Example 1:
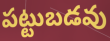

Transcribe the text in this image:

పట్టుబడవు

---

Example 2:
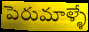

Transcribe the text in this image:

పెరుమాళ్ళే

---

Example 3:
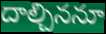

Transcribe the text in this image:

దాల్చిననూ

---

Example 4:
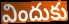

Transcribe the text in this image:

విందుకు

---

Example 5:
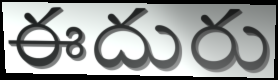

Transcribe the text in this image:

ఈదురు